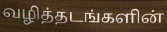
வழித்தடங்களின்